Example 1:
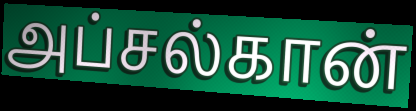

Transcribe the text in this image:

அப்சல்கான்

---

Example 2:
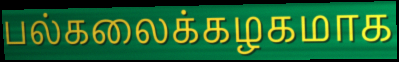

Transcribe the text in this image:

பல்கலைக்கழகமாக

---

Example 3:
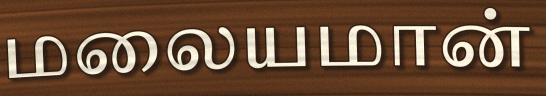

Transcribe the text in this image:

மலையமான்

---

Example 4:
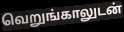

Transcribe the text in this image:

வெறுங்காலுடன்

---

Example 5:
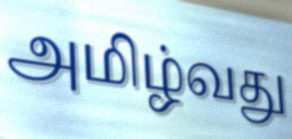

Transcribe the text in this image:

அமிழ்வது